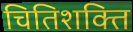
चितिशक्ति